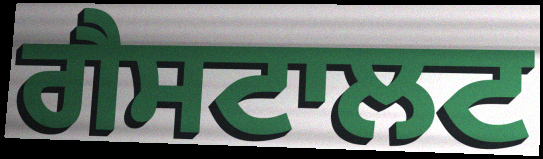
ਗੈਸਟਾਲਟ